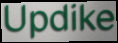
Updike